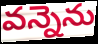
వన్నెను